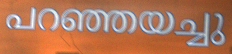
പറഞ്ഞയച്ചു